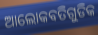
ଆଲୋକବତିଗୁଡିକ